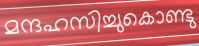
മന്ദഹസിച്ചുകൊണ്ടു